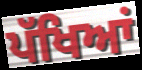
ਪੱਖਿਆਂ